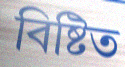
বিষ্টিত